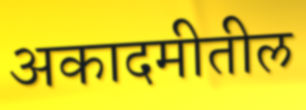
अकादमीतील